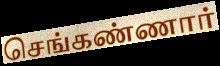
செங்கண்ணார்